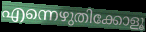
എന്നെഴുതിക്കോളൂ